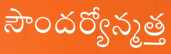
సౌందర్యోన్మత్త